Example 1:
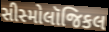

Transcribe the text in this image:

સીસ્મોલૉજિકલ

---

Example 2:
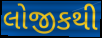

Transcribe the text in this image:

લોજીકથી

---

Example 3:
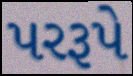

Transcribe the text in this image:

પરરૂપે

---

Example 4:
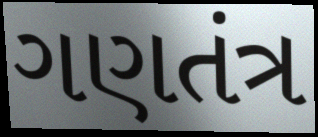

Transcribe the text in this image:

ગણતંત્ર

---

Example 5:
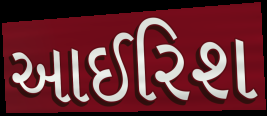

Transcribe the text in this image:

આઈરિશ